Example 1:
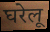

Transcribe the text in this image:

घरेलू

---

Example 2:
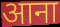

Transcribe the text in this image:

आना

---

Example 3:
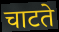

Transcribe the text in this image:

चाटते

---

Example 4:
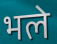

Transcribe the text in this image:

भले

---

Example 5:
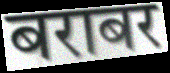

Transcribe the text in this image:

बराबर